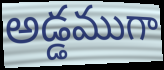
అడ్డముగా